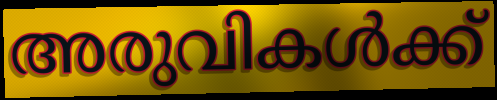
അരുവികൾക്ക്